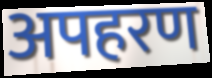
अपहरण